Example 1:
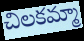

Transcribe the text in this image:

చిలకమ్మా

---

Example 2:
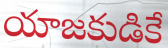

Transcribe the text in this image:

యాజకుడికే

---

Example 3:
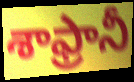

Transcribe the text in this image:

శాఫ్రానీ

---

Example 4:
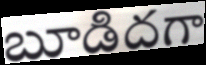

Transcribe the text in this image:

బూడిదగా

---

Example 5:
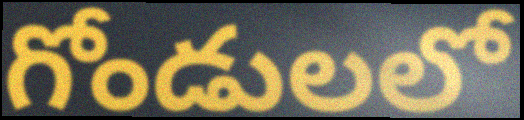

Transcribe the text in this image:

గోండులలో